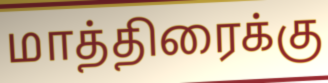
மாத்திரைக்கு